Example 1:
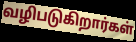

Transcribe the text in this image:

வழிபடுகிறார்கள்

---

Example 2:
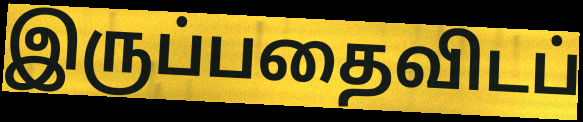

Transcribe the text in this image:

இருப்பதைவிடப்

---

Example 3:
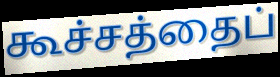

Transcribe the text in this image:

கூச்சத்தைப்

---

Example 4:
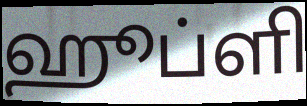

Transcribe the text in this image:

ஹூப்ளி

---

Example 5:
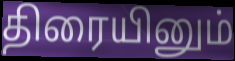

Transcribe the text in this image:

திரையினும்